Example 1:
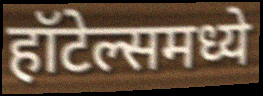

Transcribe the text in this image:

हॉटेल्समध्ये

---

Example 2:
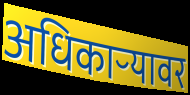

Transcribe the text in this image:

अधिकाऱ्यावर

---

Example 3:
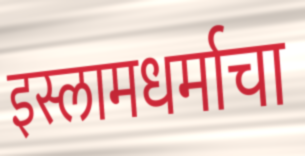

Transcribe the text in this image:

इस्लामधर्माचा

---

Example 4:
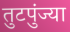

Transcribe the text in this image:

तुटपुंज्या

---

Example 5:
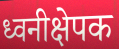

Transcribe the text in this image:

ध्वनीक्षेपक